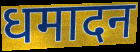
धमादन